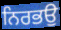
ਨਿਰਭਉ